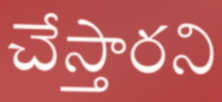
చేస్తారని